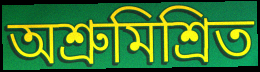
অশ্রুমিশ্রিত